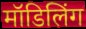
मॉडिलिंग